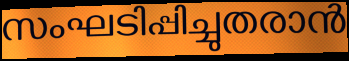
സംഘടിപ്പിച്ചുതരാൻ